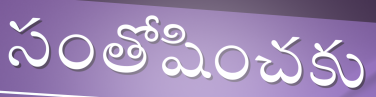
సంతోషించకు